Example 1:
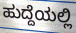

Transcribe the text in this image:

ಹುದ್ದೆಯಲ್ಲಿ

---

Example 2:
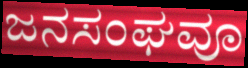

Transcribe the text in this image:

ಜನಸಂಘವೂ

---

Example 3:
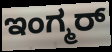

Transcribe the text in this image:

ಇಂಗ್ಮರ್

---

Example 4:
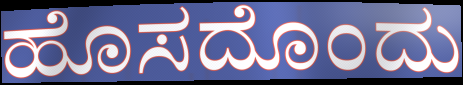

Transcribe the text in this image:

ಹೊಸದೊಂದು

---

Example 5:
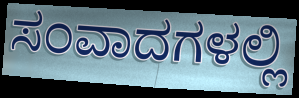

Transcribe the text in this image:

ಸಂವಾದಗಳಲ್ಲಿ